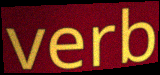
verb